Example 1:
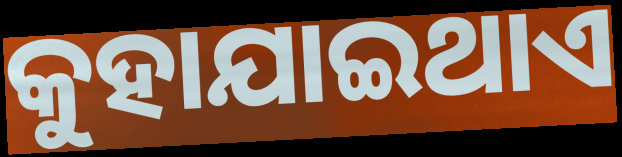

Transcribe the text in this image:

କୁହାଯାଇଥାଏ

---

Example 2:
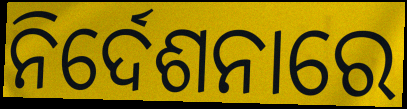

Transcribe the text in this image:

ନିର୍ଦେଶନାରେ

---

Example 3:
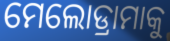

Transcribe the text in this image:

ମେଲୋଡ୍ରାମାକୁ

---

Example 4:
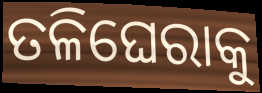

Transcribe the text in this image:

ତଳିଘେରାକୁ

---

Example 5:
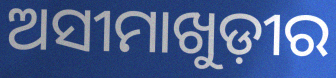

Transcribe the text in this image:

ଅସୀମାଖୁଡ଼ୀର